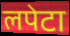
लपेटा